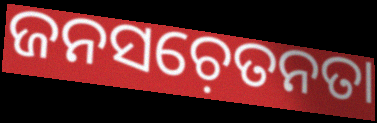
ଜନସଚ଼େତନତା